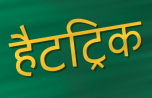
हैटट्रिक